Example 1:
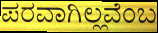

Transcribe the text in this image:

ಪರವಾಗಿಲ್ಲವೆಂಬ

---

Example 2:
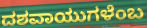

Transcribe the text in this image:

ದಶವಾಯುಗಳೆಂಬ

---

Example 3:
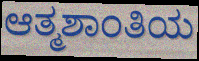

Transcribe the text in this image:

ಆತ್ಮಶಾಂತಿಯ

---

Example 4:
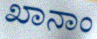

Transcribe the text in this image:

ಖಾನಾಂ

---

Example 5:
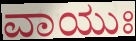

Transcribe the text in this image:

ವಾಯುಃ